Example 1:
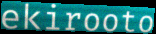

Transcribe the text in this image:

ekirooto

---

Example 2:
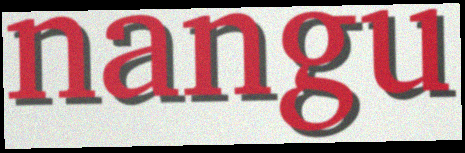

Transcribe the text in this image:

nangu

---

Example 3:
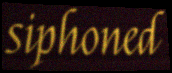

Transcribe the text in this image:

siphoned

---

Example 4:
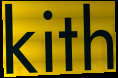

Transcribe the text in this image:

kith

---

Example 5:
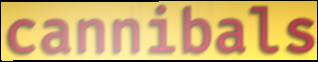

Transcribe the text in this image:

cannibals